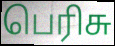
பெரிசு